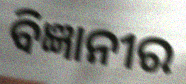
ବିଜ୍ଞାନୀର